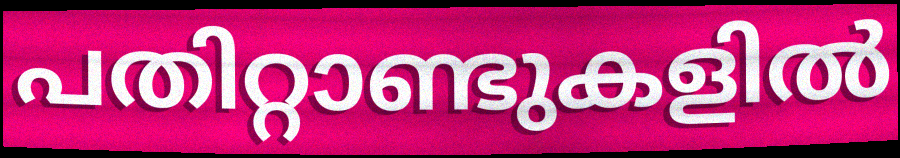
പതിറ്റാണ്ടുകളിൽ